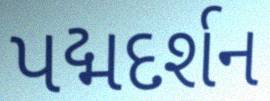
પદ્મદર્શન